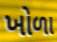
ખોળા